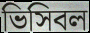
ভিসিবল